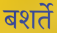
बशर्ते